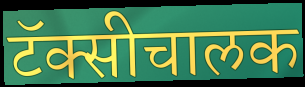
टॅक्सीचालक